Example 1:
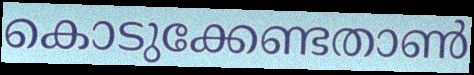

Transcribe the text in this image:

കൊടുക്കേണ്ടതാൺ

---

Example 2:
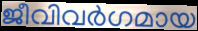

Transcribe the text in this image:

ജീവിവർഗമായ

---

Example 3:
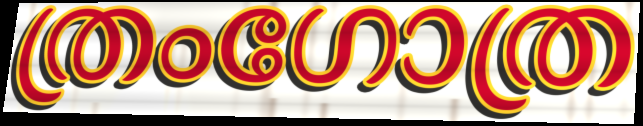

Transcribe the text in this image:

ത്രംഗോത്ര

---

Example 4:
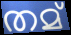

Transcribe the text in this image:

തമ്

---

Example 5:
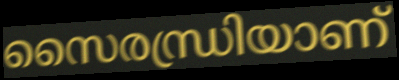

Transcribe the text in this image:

സൈരന്ധ്രിയാണ്